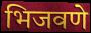
भिजवणे